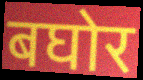
बघोर